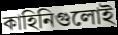
কাহিনিগুলোই